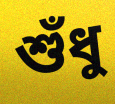
শুঁধু